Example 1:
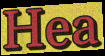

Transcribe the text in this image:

Hea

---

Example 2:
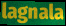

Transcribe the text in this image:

lagnala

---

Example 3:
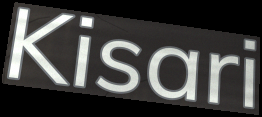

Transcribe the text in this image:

Kisari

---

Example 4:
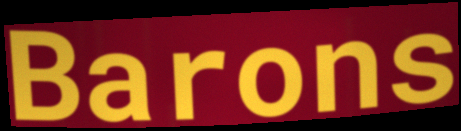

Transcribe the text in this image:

Barons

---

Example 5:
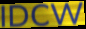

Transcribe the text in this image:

IDCW